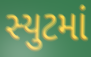
સ્યુટમાં